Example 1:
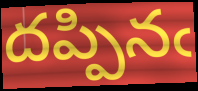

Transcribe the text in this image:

దప్పినఁ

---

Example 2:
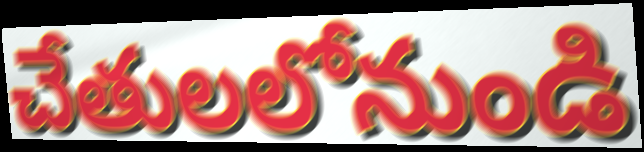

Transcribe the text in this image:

చేతులలోనుండి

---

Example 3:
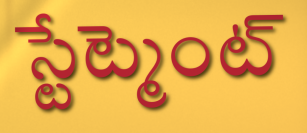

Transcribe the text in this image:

స్టేట్మెంట్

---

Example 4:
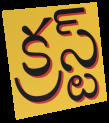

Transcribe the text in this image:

క్రస్ట్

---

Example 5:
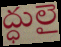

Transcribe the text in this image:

ద్ధులై